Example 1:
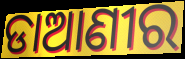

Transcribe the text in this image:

ଡାଆଣୀର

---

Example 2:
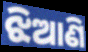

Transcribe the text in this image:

ଝିଆଣି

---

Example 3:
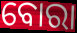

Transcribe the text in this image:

ବୋରା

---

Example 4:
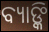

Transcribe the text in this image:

ବ୍ୟାଙ୍କି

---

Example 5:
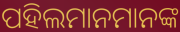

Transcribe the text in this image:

ପହିଲମାନମାନଙ୍କ